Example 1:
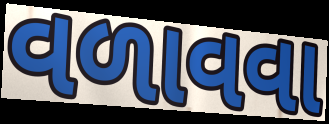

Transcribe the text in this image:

વળાવવા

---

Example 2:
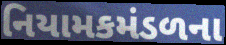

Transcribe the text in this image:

નિયામકમંડળના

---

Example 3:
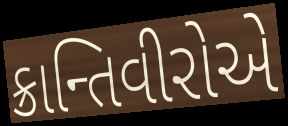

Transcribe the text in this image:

ક્રાન્તિવીરોએ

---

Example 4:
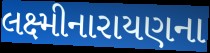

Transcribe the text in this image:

લક્ષ્મીનારાયણના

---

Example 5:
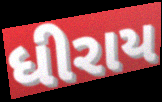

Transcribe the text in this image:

ધીરાય